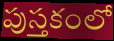
పుస్తకంలో